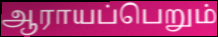
ஆராயப்பெறும்